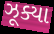
ઝૂક્યા